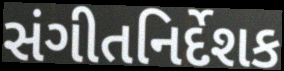
સંગીતનિર્દેશક